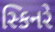
સ્કિનરે